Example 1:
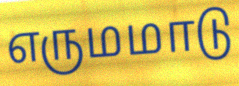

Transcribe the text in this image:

எருமமாடு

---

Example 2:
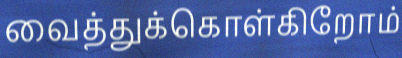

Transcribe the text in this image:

வைத்துக்கொள்கிறோம்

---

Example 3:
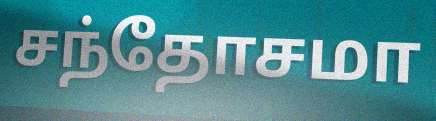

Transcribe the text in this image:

சந்தோசமா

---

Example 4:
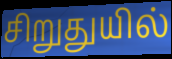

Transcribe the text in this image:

சிறுதுயில்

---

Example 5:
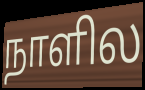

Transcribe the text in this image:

நாளில